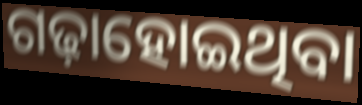
ଗଢ଼ାହୋଇଥିବା